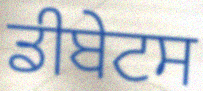
ਡੀਬੇਟਸ